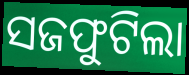
ସଜଫୁଟିଲା